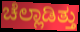
ಚೆಲ್ಲಾಡಿತ್ತು